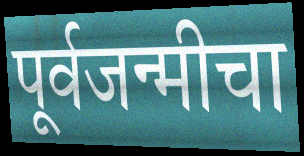
पूर्वजन्मीचा